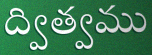
ద్విత్వము